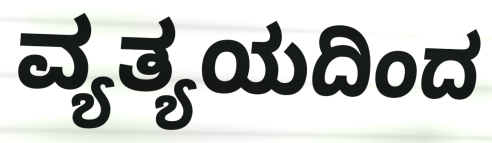
ವ್ಯತ್ಯಯದಿಂದ